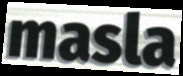
masla